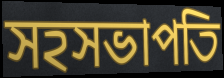
সহসভাপতি